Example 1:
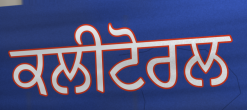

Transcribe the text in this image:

ਕਲੀਟੋਰਲ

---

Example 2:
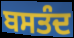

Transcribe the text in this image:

ਬਸਤੰਦ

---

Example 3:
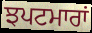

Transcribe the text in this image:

ਝਪਟਮਾਰਾਂ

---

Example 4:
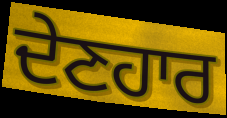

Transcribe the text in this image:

ਦੇਣਹਾਰ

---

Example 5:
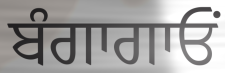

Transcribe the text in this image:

ਬੰਗਾਗਾਓਂ